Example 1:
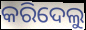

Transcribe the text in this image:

କରିଦେଲୁ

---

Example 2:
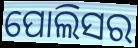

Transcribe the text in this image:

ପୋଲିସର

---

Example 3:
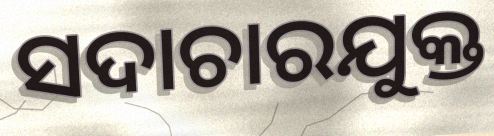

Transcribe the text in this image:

ସଦାଚାରଯୁକ୍ତ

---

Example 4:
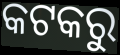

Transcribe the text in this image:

କଟକରୁ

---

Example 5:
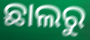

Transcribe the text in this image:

ଛାଲରୁ